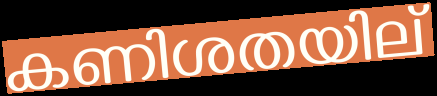
കണിശതയില്